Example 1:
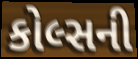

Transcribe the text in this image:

કોલ્સની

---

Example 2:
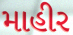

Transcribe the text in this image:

માહીર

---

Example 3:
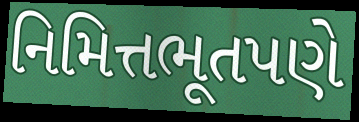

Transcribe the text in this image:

નિમિત્તભૂતપણે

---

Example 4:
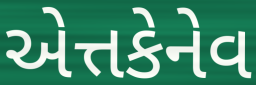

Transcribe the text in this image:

એત્તકેનેવ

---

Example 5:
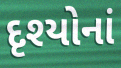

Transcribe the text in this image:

દૃશ્યોનાં